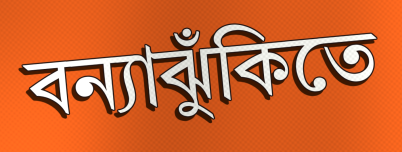
বন্যাঝুঁকিতে